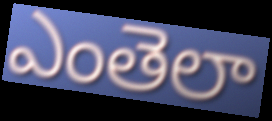
ఎంతెలా